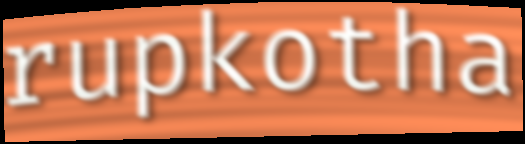
rupkotha